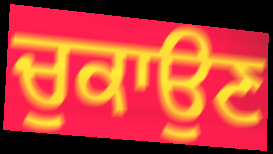
ਚੁਕਾਉਣ